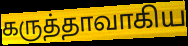
கருத்தாவாகிய